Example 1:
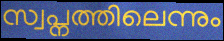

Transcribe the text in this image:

സ്വപ്നത്തിലെന്നും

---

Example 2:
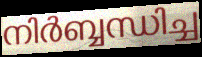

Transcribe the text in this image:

നിർബ്ബന്ധിച്ച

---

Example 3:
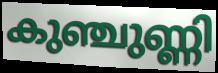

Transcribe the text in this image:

കുഞ്ചുണ്ണി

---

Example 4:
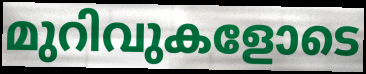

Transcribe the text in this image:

മുറിവുകളോടെ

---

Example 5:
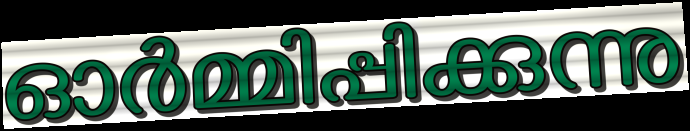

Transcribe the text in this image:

ഓർമ്മിപ്പിക്കുന്നു